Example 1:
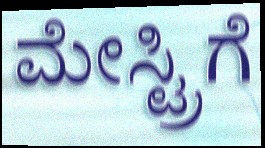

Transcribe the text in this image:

ಮೇಸ್ಟ್ರಿಗೆ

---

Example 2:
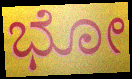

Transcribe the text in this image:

ಭೋ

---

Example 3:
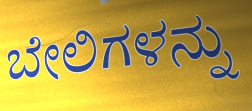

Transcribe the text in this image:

ಬೇಲಿಗಳನ್ನು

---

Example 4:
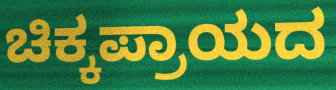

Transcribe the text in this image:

ಚಿಕ್ಕಪ್ರಾಯದ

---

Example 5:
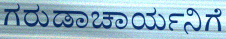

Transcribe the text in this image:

ಗರುಡಾಚಾರ್ಯನಿಗೆ